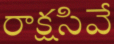
రాక్షసివే